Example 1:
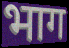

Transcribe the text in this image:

भाग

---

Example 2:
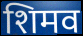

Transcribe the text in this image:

शिमव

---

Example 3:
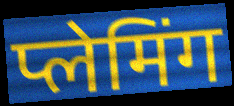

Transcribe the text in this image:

प्लेमिंग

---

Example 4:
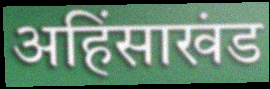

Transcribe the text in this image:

अहिंसाखंड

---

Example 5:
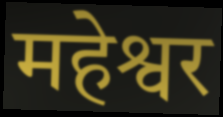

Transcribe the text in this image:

महेश्वर